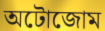
অটোজোম